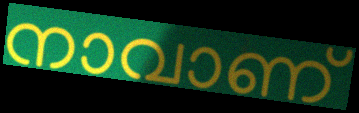
നാവാണ്